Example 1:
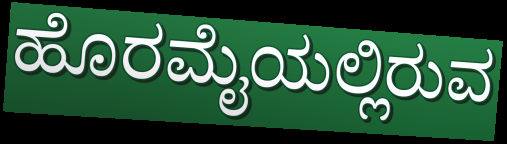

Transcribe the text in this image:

ಹೊರಮೈಯಲ್ಲಿರುವ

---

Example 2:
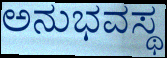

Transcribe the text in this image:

ಅನುಭವಸ್ಥ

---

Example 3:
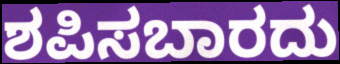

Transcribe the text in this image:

ಶಪಿಸಬಾರದು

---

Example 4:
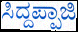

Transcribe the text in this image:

ಸಿದ್ದಪ್ಪಾಜಿ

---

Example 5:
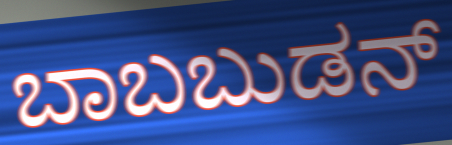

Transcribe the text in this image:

ಬಾಬಬುಡನ್